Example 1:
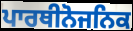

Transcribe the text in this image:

ਪਾਰਥੀਨੋਜਨਿਕ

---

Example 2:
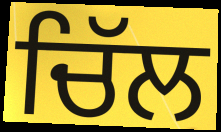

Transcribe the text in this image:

ਚਿੱਲ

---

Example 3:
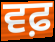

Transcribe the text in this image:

ਵਫ਼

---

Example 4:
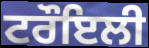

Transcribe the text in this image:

ਟਰੌਇਲੀ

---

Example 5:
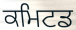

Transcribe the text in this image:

ਕਮਿਟਡ